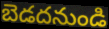
బెడదనుండి